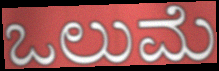
ಒಲುಮೆ